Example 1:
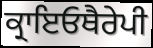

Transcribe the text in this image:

ਕ੍ਰਾਇਓਥੈਰੇਪੀ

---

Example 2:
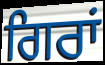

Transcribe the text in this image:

ਗਿਰਾਂ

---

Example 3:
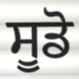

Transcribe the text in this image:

ਸੂਡੋ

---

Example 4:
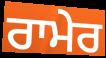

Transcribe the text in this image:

ਰਾਮੇਰ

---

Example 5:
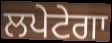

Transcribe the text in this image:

ਲਪੇਟੇਗਾ